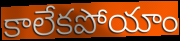
కాలేకపోయాం